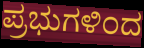
ಪ್ರಭುಗಳಿಂದ